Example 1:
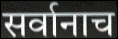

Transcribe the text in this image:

सर्वानाच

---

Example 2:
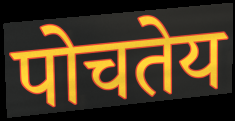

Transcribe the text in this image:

पोचतेय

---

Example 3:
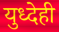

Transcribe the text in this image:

युध्देही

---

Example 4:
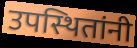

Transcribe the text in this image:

उपस्थितांनी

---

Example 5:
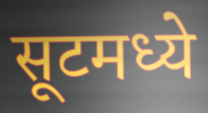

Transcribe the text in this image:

सूटमध्ये